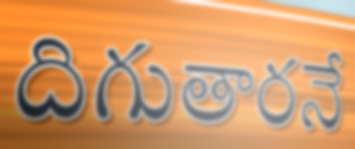
దిగుతారనే